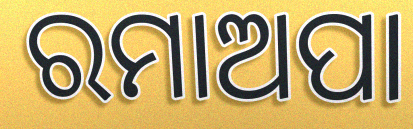
ରମାଅପା